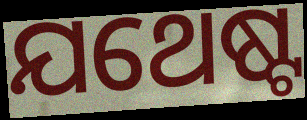
ଯଥେଷ୍ଟ